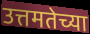
उत्तमतेच्या